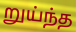
றுய்ந்த